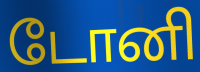
டோனி